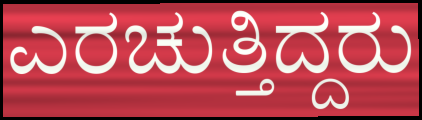
ಎರಚುತ್ತಿದ್ದರು